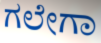
ಗಲೇಗಾ